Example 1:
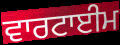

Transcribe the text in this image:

ਵਾਰਟਾਈਮ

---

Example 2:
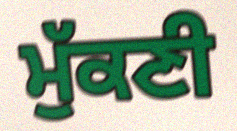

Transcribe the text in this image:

ਮੁੱਕਣੀ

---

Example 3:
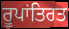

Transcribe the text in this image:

ਰੂਪਾਂਤਿਰਤ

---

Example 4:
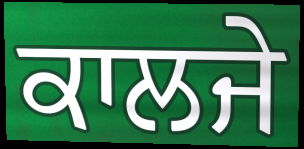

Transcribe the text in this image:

ਕਾਲਜੇ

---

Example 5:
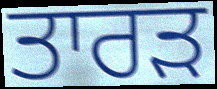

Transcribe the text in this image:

ਤਾਰੜ